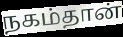
நகம்தான்